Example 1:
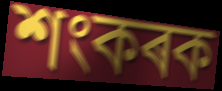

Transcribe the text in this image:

শংকৰক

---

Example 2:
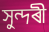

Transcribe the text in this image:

সুন্দৰী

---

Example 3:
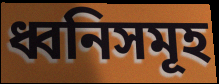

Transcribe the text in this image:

ধ্বনিসমূহ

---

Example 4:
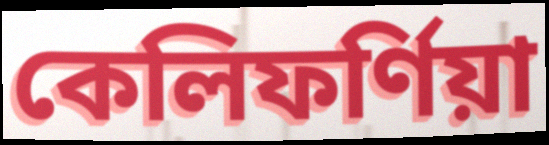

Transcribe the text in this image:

কেলিফৰ্ণিয়া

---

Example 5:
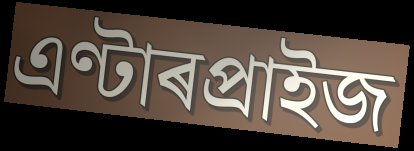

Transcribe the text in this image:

এণ্টাৰপ্ৰাইজ